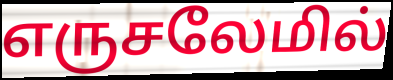
எருசலேமில்